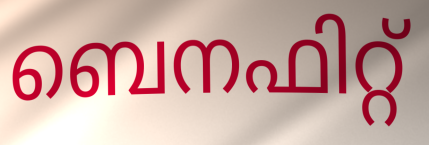
ബെനഫിറ്റ്